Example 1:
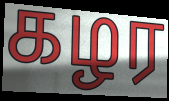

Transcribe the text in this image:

கழர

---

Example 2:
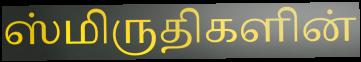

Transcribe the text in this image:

ஸ்மிருதிகளின்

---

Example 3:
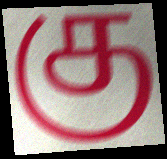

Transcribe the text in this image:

கு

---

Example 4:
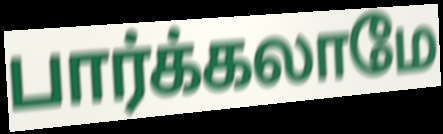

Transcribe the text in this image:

பார்க்கலாமே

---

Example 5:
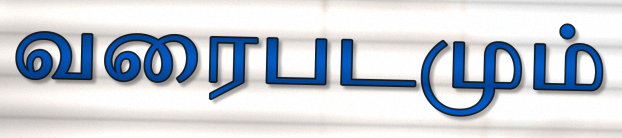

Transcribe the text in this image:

வரைபடமும்